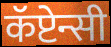
कॅप्टेन्सी